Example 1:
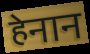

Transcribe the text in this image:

हेनान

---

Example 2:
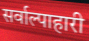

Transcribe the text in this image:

सर्वाल्पाहारी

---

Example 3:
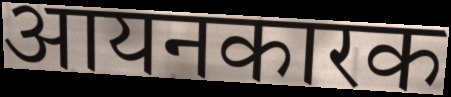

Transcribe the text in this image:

आयनकारक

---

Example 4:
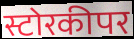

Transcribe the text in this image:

स्टोरकीपर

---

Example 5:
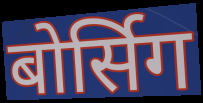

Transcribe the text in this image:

बोर्सिग